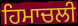
ਹਿਮਾਚਲੀ